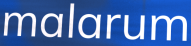
malarum